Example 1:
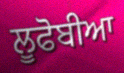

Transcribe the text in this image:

ਲੂਫੋਬੀਆ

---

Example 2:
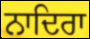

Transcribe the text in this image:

ਨਾਦਿਰਾ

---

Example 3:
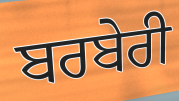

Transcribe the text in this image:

ਬਰਬੇਰੀ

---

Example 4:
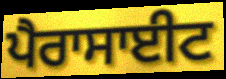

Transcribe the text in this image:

ਪੈਰਾਸਾਈਟ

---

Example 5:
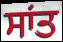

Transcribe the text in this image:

ਸਾਂਤ